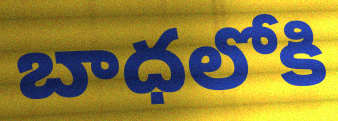
బాధలోకి